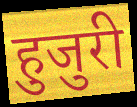
हुजुरी